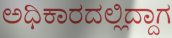
ಅಧಿಕಾರದಲ್ಲಿದ್ದಾಗ